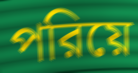
পরিয়ে